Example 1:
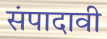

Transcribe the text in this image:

संपादावी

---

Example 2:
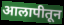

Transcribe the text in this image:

आलापीतून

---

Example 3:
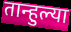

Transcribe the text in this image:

तान्हुल्या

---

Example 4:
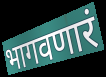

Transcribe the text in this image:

भागवणारं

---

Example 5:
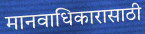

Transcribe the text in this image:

मानवाधिकारासाठी